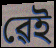
ৱেই